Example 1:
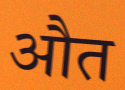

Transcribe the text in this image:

औत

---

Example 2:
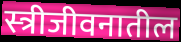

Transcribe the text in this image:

स्त्रीजीवनातील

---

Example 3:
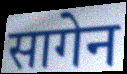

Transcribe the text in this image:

सागेन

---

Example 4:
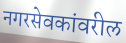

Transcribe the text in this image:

नगरसेवकांवरील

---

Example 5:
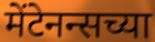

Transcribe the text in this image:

मेंटेनन्सच्या